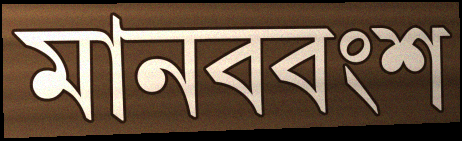
মানববংশ